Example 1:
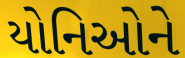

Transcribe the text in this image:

યોનિઓને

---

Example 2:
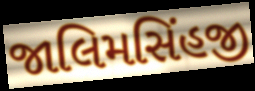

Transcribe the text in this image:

જાલિમસિંહજી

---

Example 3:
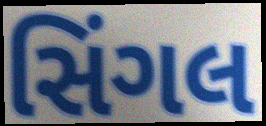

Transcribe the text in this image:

સિંગલ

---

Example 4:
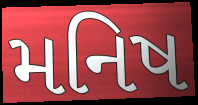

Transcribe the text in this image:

મનિષ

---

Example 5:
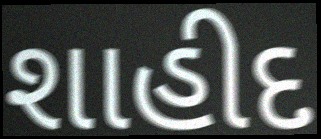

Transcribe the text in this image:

શાહીદ